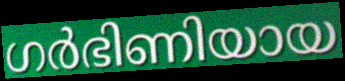
ഗർഭിണിയായ